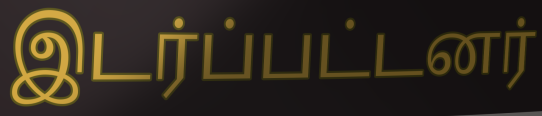
இடர்ப்பட்டனர்